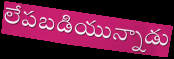
లేపబడియున్నాడు